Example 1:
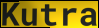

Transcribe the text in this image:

Kutra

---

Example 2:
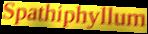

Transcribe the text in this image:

Spathiphyllum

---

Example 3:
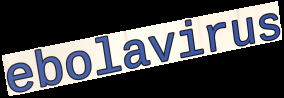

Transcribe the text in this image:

ebolavirus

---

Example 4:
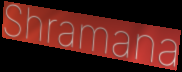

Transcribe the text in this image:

Shramana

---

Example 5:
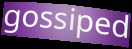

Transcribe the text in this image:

gossiped